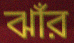
ঝাঁর